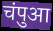
चंपुआ